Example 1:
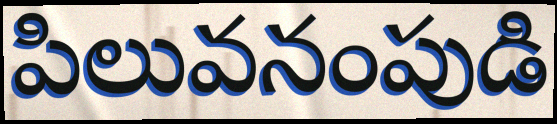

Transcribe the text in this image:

పిలువనంపుడి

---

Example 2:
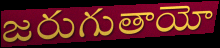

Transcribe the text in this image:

జరుగుతాయో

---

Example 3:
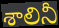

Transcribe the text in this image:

శాలినీ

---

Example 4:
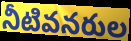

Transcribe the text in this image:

నీటివనరుల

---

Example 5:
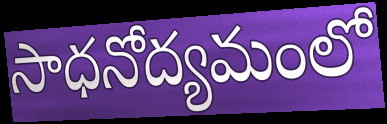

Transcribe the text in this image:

సాధనోద్యమంలో